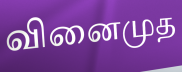
வினைமுத